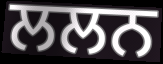
ਲਲਨ